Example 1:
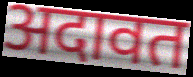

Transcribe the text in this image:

अदावत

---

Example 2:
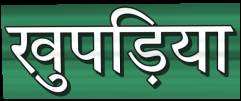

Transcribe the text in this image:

खुपड़िया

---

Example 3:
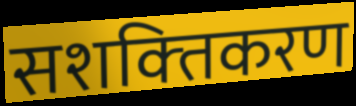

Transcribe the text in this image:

सशक्‍तिकरण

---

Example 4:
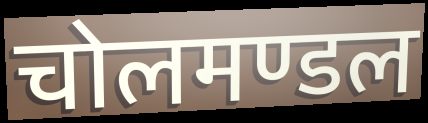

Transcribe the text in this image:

चोलमण्डल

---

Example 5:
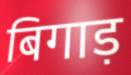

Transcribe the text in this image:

बिगाड़